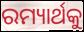
ରମ୍ୟାର୍ଥକୁ